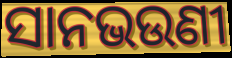
ସାନଭଉଣୀ